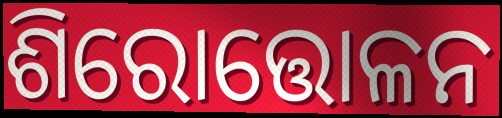
ଶିରୋତ୍ତୋଳନ